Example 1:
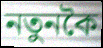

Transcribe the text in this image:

নতুনকৈ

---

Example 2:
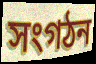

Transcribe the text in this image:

সংগঠন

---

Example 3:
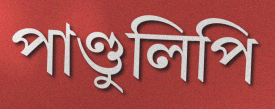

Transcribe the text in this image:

পাণ্ডুলিপি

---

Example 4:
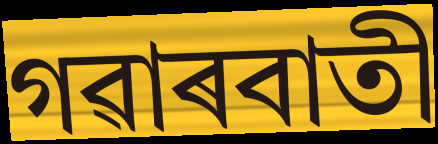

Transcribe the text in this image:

গৱাৰবাতী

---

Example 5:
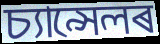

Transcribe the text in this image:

চ্যান্সেলৰ